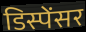
डिस्पेंसर